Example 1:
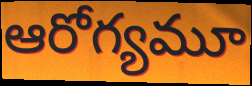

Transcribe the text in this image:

ఆరోగ్యమూ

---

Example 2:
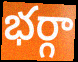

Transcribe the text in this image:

భర్గా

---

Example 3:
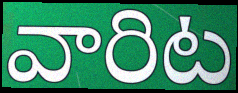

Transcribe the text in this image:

వారిట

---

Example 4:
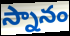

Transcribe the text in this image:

స్నానం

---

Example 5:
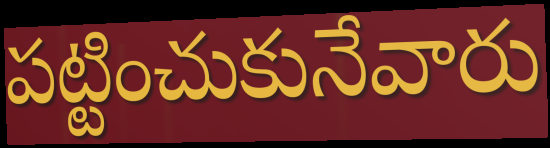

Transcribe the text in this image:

పట్టించుకునేవారు